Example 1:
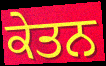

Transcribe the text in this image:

ਕੇਤਨ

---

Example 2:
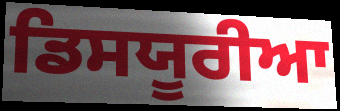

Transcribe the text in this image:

ਡਿਸਯੂਰੀਆ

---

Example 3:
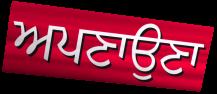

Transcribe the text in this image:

ਅਪਣਾਉਣਾ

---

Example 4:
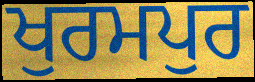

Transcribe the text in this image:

ਖੁਰਮਪੁਰ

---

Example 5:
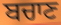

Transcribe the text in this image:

ਬਚਾਣ